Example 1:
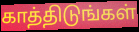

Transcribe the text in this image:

காத்திடுங்கள்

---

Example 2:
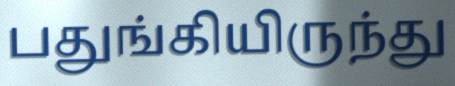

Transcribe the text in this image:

பதுங்கியிருந்து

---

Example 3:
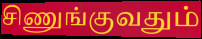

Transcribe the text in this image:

சிணுங்குவதும்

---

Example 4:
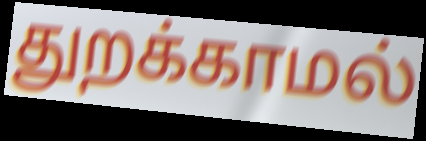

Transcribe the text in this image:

துறக்காமல்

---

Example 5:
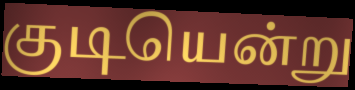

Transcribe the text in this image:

குடியென்று